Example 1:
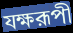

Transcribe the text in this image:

যক্ষরূপী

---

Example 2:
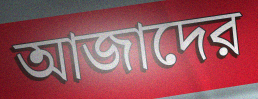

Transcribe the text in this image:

আজাদের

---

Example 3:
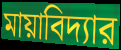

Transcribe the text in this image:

মায়াবিদ্যার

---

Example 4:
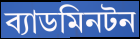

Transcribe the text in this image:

ব্যাডমিনটন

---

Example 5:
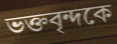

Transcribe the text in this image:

ভক্তবৃন্দকে